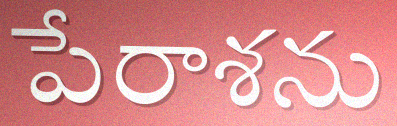
పేరాశను